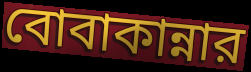
বোবাকান্নার